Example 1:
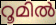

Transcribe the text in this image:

റൂമിൽ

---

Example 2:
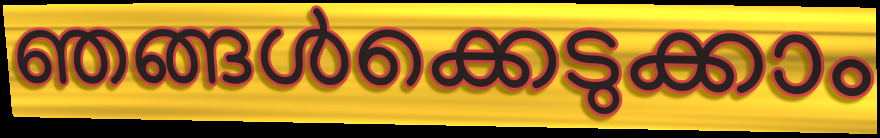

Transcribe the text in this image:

ഞങ്ങൾക്കെടുക്കാം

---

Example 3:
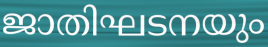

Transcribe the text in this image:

ജാതിഘടനയും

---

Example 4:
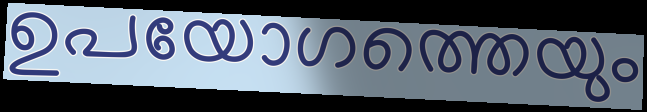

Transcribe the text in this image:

ഉപയോഗത്തെയും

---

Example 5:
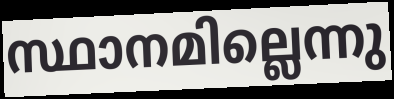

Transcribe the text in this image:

സ്ഥാനമില്ലെന്നു